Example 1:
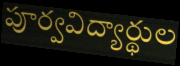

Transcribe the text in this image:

పూర్వవిద్యార్థుల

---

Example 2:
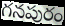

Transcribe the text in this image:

గనపురం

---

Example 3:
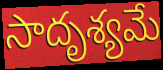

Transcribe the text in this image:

సాదృశ్యమే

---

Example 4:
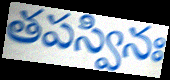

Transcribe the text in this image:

తపస్వినః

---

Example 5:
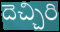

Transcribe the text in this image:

దెచ్చిరి